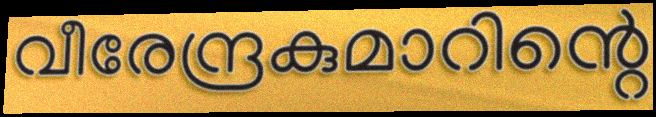
വീരേന്ദ്രകുമാറിന്റെ